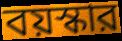
বয়স্কার